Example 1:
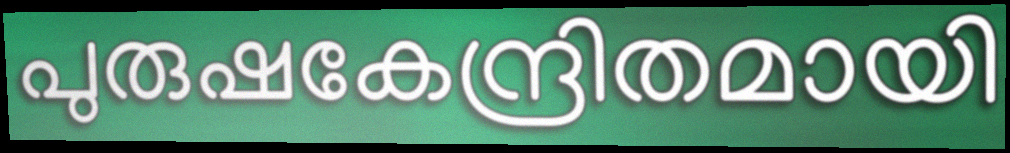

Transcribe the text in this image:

പുരുഷകേന്ദ്രിതമായി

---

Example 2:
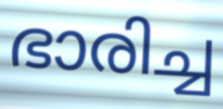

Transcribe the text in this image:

ഭാരിച്ച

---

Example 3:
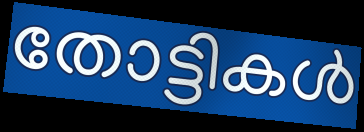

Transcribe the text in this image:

തോട്ടികൾ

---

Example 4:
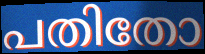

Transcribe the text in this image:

പതിതോ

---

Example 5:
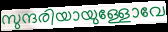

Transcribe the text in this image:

സുന്ദരിയായുള്ളോവേ